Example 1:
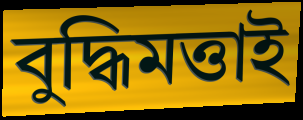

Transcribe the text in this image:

বুদ্ধিমত্তাই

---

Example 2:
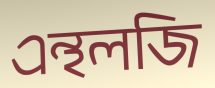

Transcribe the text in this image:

এন্থলজি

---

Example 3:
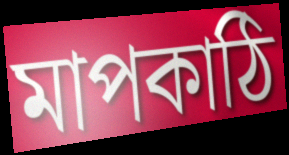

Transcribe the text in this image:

মাপকাঠি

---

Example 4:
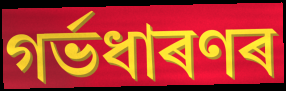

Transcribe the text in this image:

গৰ্ভধাৰণৰ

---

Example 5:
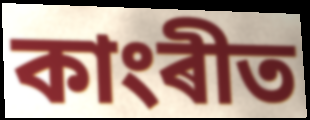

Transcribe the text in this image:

কাংৰীত